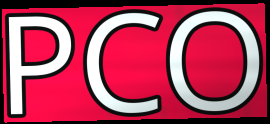
PCO